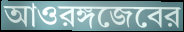
আওরঙ্গজেবের